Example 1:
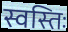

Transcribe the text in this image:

स्वस्तिः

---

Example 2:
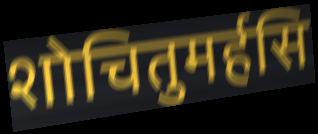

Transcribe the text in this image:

शोचितुमर्हसि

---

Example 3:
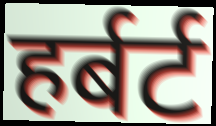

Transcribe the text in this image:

हर्बर्ट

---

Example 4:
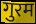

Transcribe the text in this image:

गुरम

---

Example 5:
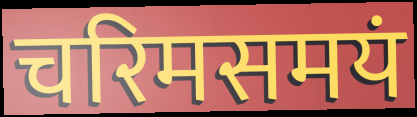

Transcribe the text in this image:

चरिमसमयं